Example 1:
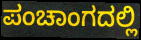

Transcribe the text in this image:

ಪಂಚಾಂಗದಲ್ಲಿ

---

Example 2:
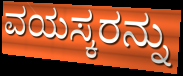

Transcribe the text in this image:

ವಯಸ್ಕರನ್ನು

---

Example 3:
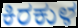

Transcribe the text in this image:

ಕಿರಕುಳ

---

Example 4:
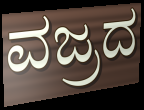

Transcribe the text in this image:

ವಜ್ರದ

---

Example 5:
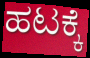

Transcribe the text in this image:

ಹಟಕ್ಕೆ